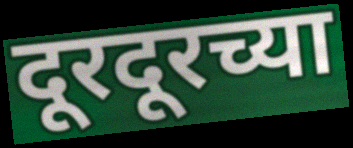
दूरदूरच्या